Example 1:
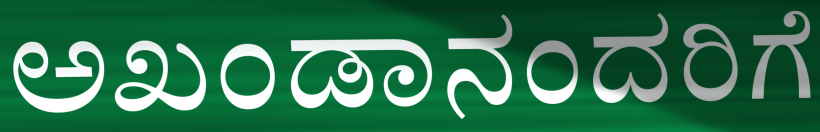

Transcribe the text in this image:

ಅಖಂಡಾನಂದರಿಗೆ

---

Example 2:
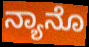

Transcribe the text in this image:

ನ್ಯಾನೊ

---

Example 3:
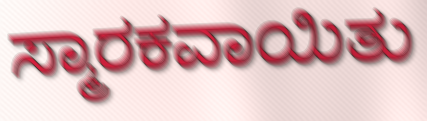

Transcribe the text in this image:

ಸ್ಮಾರಕವಾಯಿತು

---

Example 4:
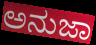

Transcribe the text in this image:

ಅನುಜಾ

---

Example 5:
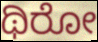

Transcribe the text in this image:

ಥಿರೋ